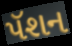
પૅશન